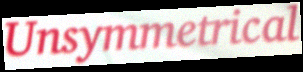
Unsymmetrical